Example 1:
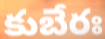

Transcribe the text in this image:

కుబేరః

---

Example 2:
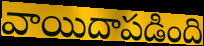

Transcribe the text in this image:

వాయిదాపడింది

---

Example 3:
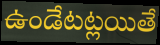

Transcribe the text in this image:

ఉండేటట్లయితే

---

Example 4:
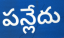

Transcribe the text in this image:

పన్లేదు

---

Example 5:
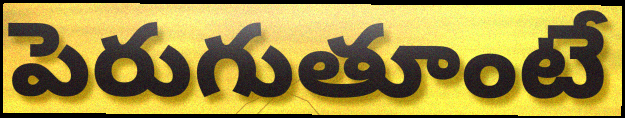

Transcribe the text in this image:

పెరుగుతూంటే